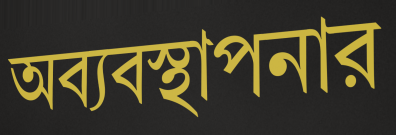
অব্যবস্থাপনার